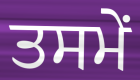
ਤਸਮੇਂ